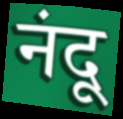
नंदू